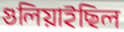
গুলিয়াইছিল